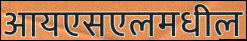
आयएसएलमधील